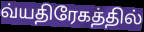
வ்யதிரேகத்தில்